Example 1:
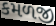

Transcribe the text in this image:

કમળજી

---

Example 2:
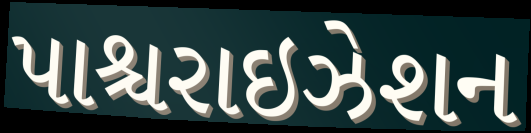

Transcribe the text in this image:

પાશ્ચરાઇઝેશન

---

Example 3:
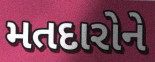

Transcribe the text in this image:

મતદારોને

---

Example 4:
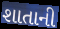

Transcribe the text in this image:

શાતાની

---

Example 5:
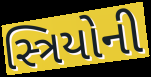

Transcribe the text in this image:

સ્ત્રિયોની